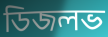
ডিজলভ